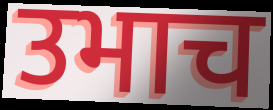
उभाच